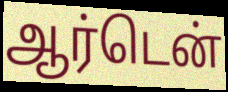
ஆர்டென்